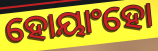
ହୋୟାଂହୋ